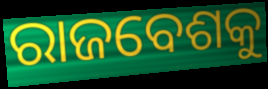
ରାଜବେଶକୁ